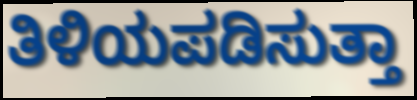
ತಿಳಿಯಪಡಿಸುತ್ತಾ